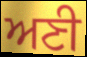
ਅਣੀ